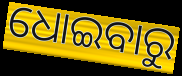
ଧୋଇବାରୁ